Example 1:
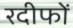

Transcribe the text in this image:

रदीफों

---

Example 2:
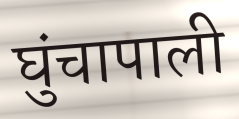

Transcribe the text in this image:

घुंचापाली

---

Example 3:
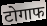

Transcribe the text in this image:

टोगाफ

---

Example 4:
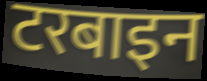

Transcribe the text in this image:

टरबाइन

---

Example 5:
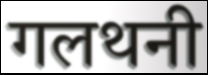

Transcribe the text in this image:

गलथनी